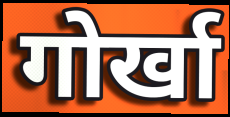
गोर्खा